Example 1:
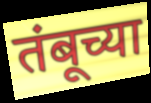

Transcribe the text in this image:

तंबूच्या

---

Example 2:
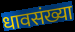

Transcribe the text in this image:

धावसंख्या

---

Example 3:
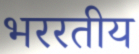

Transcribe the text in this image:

भररतीय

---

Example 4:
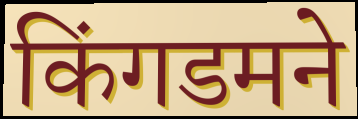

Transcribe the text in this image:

किंगडमने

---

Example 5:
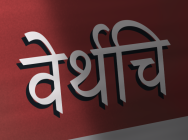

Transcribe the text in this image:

वेर्थचि